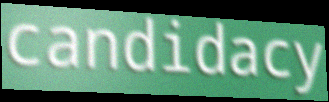
candidacy